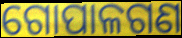
ଗୋପାଳଗଣ